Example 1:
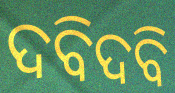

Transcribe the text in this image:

ଦବିଦବି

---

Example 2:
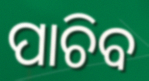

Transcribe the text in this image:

ପାଚିବ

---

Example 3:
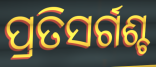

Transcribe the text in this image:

ପ୍ରତିସର୍ଗଶ୍ଚ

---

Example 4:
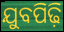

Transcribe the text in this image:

ଯୁବପିଢ଼ି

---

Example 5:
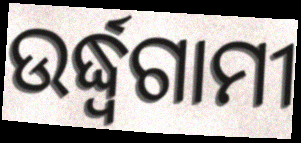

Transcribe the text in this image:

ଉର୍ଦ୍ଧ୍ୱଗାମୀ